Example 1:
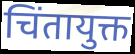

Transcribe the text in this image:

चिंतायुक्त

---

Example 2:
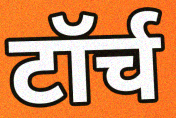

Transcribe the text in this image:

टॉर्च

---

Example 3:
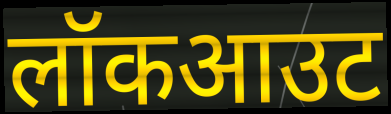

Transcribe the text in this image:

लॉकआउट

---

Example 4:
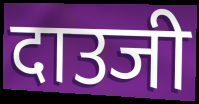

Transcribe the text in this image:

दाउजी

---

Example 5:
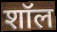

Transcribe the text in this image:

शॉल